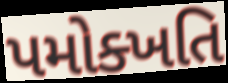
પમોક્ખતિ